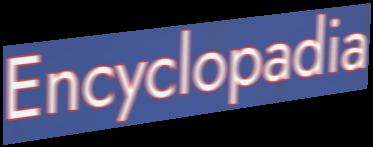
Encyclopadia